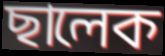
ছালেক